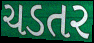
ચડતર